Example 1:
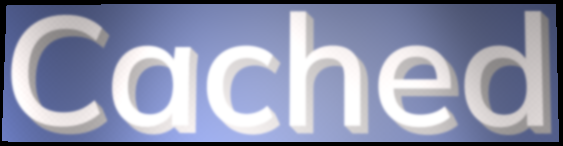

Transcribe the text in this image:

Cached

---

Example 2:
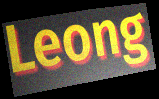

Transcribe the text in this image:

Leong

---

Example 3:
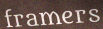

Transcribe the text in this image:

framers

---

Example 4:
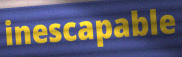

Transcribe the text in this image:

inescapable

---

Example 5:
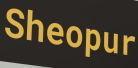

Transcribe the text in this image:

Sheopur